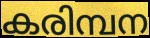
കരിമ്പന